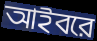
আইবরে